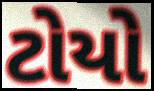
ટોયો